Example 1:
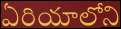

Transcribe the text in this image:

ఏరియాలోని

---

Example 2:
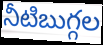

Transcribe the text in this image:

నీటిబుగ్గల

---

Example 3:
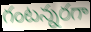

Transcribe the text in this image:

గంటన్నరగా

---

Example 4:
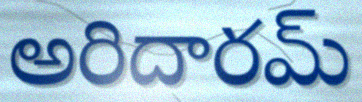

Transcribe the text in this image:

అరిదారమ్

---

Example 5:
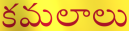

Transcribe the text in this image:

కమలాలు